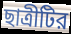
ছাত্রীটির